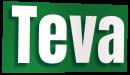
Teva